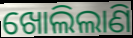
ଖୋଲିଲାଣି